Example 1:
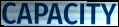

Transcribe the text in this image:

CAPACITY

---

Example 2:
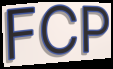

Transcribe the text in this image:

FCP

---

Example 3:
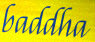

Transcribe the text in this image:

baddha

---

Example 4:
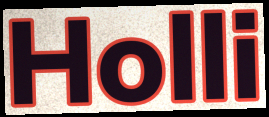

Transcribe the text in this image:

Holli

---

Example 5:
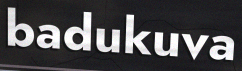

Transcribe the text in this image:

badukuva